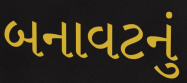
બનાવટનું